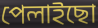
পেলাইছো